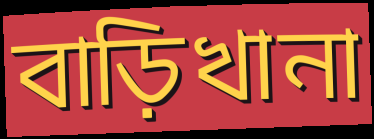
বাড়িখানা